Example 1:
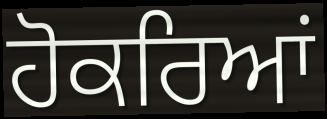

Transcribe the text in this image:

ਹੋਕਰਿਆਂ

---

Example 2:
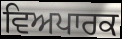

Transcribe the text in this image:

ਵਿਅਪਾਰਕ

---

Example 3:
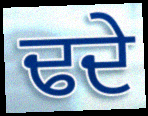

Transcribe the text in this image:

ਢਦੇ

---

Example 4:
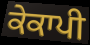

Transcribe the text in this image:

ਕੇਕਾਪੀ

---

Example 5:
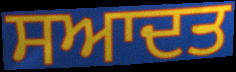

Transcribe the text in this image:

ਸਆਦਤ